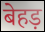
बेहड़